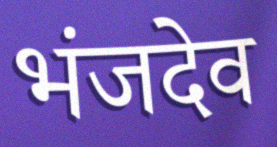
भंजदेव